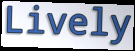
Lively